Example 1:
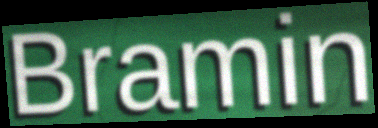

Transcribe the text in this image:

Bramin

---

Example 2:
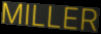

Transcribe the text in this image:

MILLER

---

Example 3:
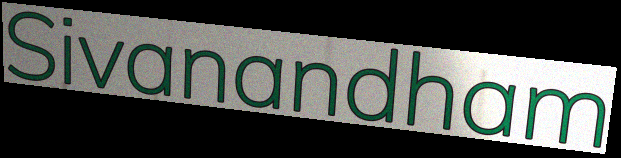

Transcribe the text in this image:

Sivanandham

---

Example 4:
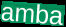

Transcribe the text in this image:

amba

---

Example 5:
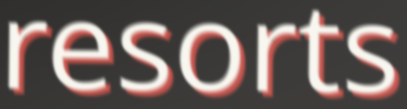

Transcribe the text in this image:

resorts